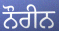
ਨੌਰੀਨ